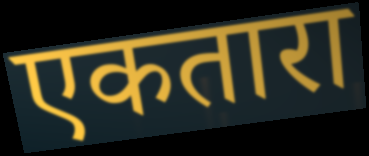
एकतारा